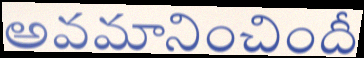
అవమానించిందీ